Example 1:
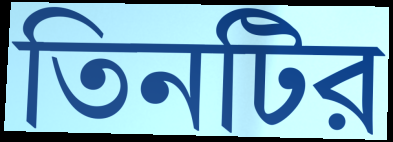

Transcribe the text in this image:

তিনটির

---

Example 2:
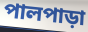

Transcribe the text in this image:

পালপাড়া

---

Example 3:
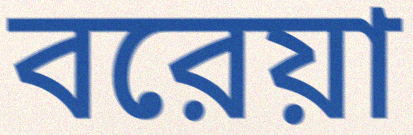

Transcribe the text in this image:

বরেয়া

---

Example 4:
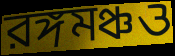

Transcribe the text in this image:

রঙ্গমঞ্চও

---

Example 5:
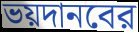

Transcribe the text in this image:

ভয়দানবের